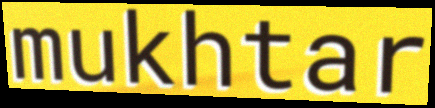
mukhtar